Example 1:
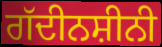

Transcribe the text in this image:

ਗੱਦੀਨਸ਼ੀਨੀ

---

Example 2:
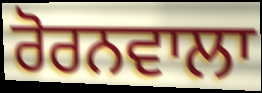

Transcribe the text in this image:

ਰੋਰਨਵਾਲਾ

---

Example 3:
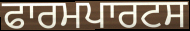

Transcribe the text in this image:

ਫਾਰਮਪਾਰਟਸ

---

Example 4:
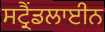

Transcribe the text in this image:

ਸਟ੍ਰੈਂਡਲਾਈਨ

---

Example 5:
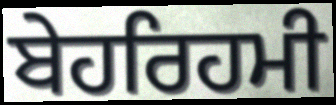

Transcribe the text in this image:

ਬੇਹਰਿਹਮੀ